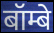
बॉम्बे